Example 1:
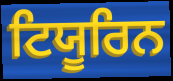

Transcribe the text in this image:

ਟਿਯੂਰਿਨ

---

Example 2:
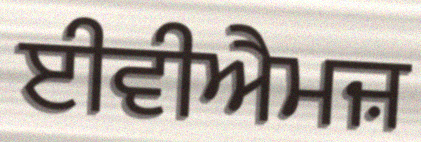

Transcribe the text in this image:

ਈਵੀਐਮਜ਼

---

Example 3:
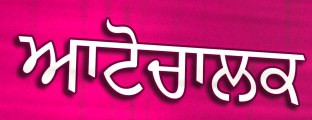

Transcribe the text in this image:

ਆਟੋਚਾਲਕ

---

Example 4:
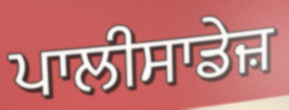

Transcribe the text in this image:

ਪਾਲੀਸਾਡੇਜ਼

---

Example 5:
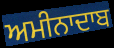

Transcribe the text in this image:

ਅਮੀਨਾਦਾਬ